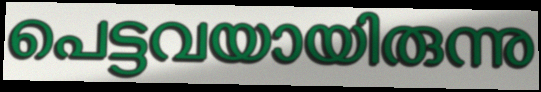
പെട്ടവയായിരുന്നു